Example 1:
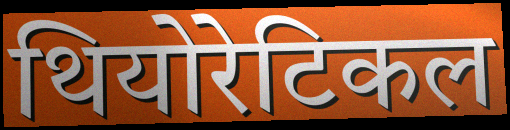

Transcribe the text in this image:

थियोरेटिकल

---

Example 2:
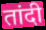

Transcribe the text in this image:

तांदी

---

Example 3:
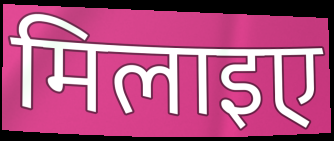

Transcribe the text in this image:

मिलाइए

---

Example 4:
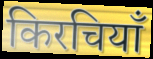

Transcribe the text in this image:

किरचियाँ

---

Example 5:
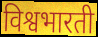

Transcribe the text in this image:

विश्वभारती